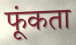
फूंकता